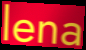
lena